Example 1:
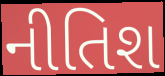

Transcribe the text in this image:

નીતિશ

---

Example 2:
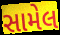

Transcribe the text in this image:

સામેલ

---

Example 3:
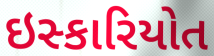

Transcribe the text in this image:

ઇસ્કારિયોત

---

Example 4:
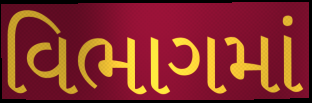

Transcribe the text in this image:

વિભાગમાં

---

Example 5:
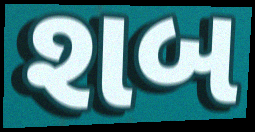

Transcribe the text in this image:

શબ